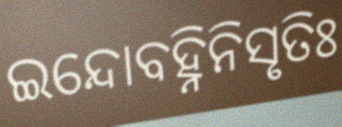
ଇନ୍ଦୋବହ୍ନିନିସୃତିଃ